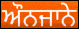
ਔਨਜਾਨੇ